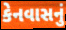
કેનવાસનું